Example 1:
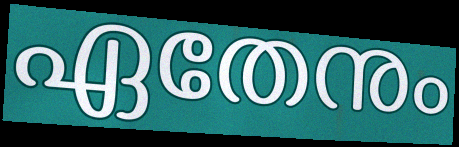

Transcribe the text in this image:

ഏതേനും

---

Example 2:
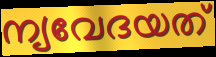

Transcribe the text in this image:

ന്യവേദയത്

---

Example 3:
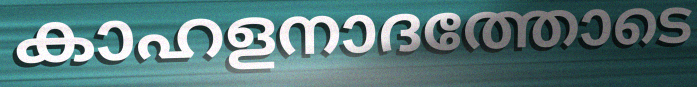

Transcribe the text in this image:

കാഹളനാദത്തോടെ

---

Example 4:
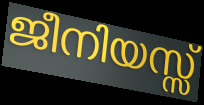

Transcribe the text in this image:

ജീനിയസ്സ്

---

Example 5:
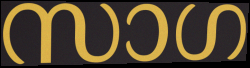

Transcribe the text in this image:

സാഗ